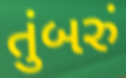
તુંબરું